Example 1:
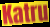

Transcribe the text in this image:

Katru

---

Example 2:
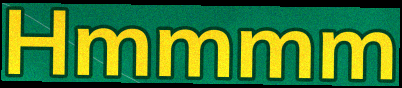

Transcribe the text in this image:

Hmmmm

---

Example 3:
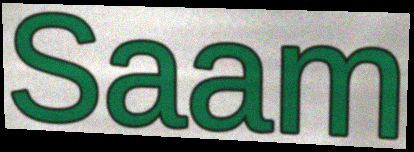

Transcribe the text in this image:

Saam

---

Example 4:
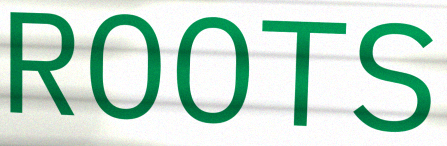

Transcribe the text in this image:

ROOTS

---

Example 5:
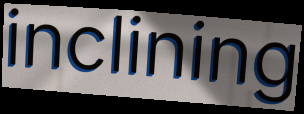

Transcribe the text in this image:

inclining